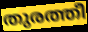
തുരത്തീ